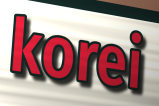
korei